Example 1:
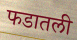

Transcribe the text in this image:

फडातली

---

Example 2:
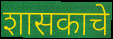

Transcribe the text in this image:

शासकाचे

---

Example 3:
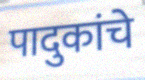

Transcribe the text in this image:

पादुकांचे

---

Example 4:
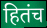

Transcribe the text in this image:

हितंच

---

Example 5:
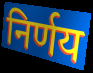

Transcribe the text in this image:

निर्णय